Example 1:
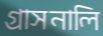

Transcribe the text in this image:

গ্রাসনালি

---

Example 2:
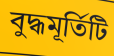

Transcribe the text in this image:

বুদ্ধমূর্তিটি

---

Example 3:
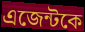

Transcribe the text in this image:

এজেন্টকে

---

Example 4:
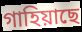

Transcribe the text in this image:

গাহিয়াছে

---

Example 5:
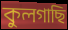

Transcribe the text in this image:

কুলগাছি